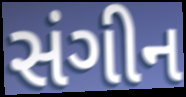
સંગીન